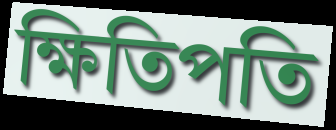
ক্ষিতিপতি